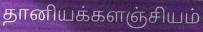
தானியக்களஞ்சியம்